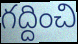
గద్దించి